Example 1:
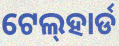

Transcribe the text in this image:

ଟେଲ୍‍ହାର୍ଡ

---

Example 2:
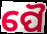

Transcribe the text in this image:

ପୈ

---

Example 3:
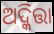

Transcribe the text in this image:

ଅଦ୍କିତ୍ତା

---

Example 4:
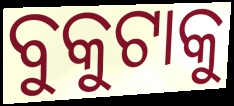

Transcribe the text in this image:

ବୁକୁଟାକୁ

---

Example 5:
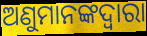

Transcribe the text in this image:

ଅଣୁମାନଙ୍କଦ୍ଵାରା